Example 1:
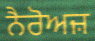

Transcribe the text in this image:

ਨੈਰੋਅਜ਼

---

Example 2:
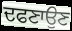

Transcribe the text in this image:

ਦਫਣਾਉਣ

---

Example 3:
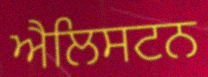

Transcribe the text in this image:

ਐਲਿਸਟਨ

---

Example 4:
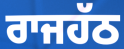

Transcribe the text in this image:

ਰਾਜਹੱਠ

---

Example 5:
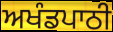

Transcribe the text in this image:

ਅਖੰਡਪਾਠੀ